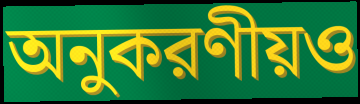
অনুকরণীয়ও